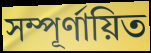
সম্পূর্ণায়িত